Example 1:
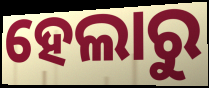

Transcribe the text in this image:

ହେଲାରୁ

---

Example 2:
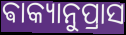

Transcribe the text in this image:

ଵାକ୍ୟାନୁପ୍ରାସ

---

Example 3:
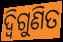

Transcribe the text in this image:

ଦ୍ଵିଗୁଣିତ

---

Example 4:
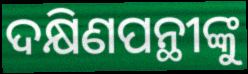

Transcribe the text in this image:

ଦକ୍ଷିଣପନ୍ଥୀଙ୍କୁ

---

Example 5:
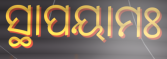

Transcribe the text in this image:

ସ୍ଥାପୟାମଃ